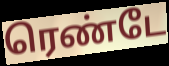
ரெண்டே